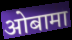
ओबामा